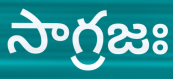
సాగ్రజః